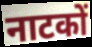
नाटकों